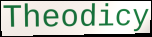
Theodicy